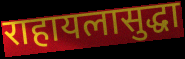
राहायलासुद्धा